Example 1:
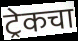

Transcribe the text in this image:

ट्रेकचा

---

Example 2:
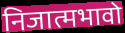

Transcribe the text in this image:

निजात्मभावो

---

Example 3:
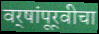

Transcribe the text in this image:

वर्षांपूर्वीचा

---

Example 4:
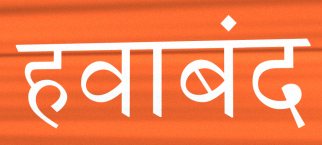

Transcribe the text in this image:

हवाबंद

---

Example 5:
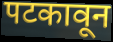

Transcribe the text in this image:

पटकावून